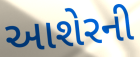
આશેરની